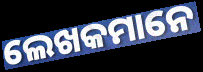
ଲେଖକମାନେ